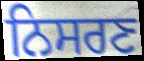
ਨਿਸਰਣ